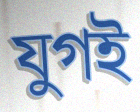
যুগই